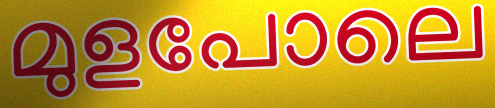
മുളപോലെ